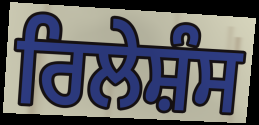
ਰਿਲੇਸ਼ੰਸ